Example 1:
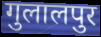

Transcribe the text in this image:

गुलालपुर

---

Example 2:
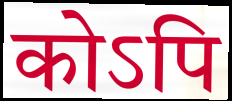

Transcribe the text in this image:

कोऽपि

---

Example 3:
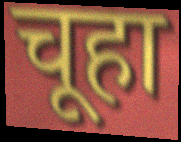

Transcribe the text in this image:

चूहा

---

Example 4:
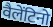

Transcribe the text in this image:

वैलेंटिनो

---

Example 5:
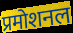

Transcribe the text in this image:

प्रमोशनल